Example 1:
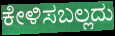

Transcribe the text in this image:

ಕೇಳಿಸಬಲ್ಲದು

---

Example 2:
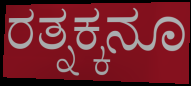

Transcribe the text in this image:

ರತ್ನಕ್ಕನೂ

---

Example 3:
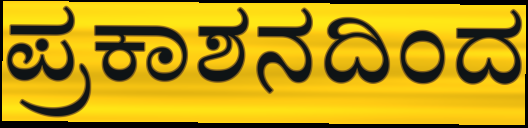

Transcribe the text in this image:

ಪ್ರಕಾಶನದಿಂದ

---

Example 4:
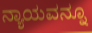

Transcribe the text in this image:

ನ್ಯಾಯವನ್ನೂ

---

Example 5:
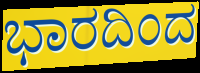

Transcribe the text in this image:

ಭಾರದಿಂದ